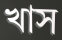
খাস